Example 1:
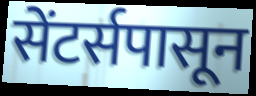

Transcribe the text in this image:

सेंटर्सपासून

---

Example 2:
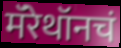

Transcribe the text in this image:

मॅरेथॉनचं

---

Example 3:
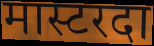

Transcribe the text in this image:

मास्टरदा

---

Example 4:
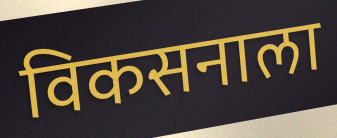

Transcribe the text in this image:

विकसनाला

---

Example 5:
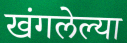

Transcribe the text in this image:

खंगलेल्या